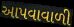
આપવાવાળી